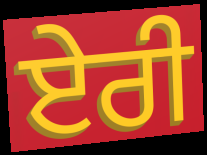
ਏਰੀ